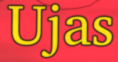
Ujas